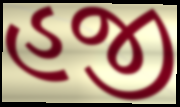
હજી